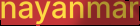
nayanmar